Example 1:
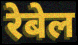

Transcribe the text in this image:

रेबेल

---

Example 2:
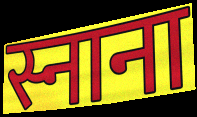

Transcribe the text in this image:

स्नाना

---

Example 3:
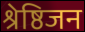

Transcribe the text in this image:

श्रेष्ठिजन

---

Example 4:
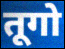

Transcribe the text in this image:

तूगो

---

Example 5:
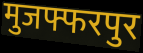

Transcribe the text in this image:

मुजफ्फरपुर